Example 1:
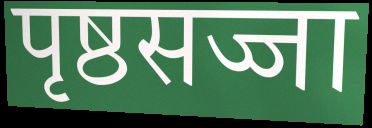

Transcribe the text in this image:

पृष्ठसज्जा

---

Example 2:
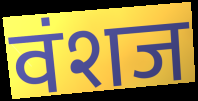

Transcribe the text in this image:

वंशज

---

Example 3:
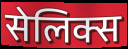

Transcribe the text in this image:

सेलिक्स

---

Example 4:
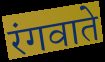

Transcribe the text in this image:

रंगवाते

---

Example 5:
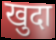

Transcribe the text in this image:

खुदा